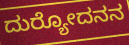
ದುರ್‍ಯೋದನನ